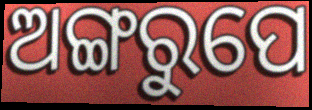
ଅଙ୍ଗରୁପେ